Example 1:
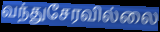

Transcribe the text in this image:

வந்துசேரவில்லை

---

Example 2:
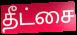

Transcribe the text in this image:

தீட்சை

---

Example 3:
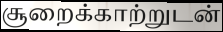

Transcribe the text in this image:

சூறைக்காற்றுடன்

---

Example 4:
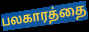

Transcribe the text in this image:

பலகாரத்தை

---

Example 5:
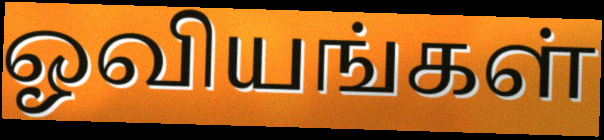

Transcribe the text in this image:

ஓவியங்கள்